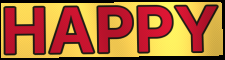
HAPPY